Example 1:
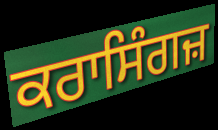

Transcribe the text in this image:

ਕਰਾਸਿੰਗਜ਼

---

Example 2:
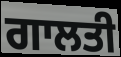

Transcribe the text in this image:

ਗਾਲਤੀ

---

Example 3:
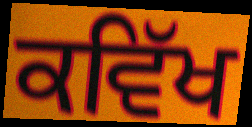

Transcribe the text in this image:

ਕਵਿੱਖ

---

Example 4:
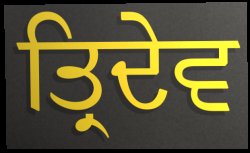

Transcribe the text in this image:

ਤ੍ਰਿਦੇਵ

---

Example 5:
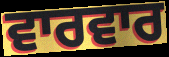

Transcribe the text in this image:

ਵਾਰਵਾਰ